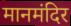
मानमंदिर